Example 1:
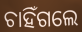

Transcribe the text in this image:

ଚାହିଁଗଲେ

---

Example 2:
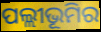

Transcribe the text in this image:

ପଲ୍ଲୀଭୂମିର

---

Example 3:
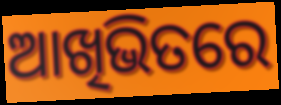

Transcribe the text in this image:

ଆଖିଭିତରେ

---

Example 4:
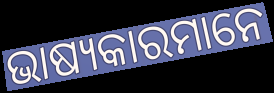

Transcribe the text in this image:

ଭାଷ୍ୟକାରମାନେ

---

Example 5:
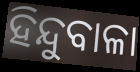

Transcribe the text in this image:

ହିନ୍ଦୁବାଳା